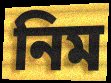
নিম